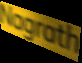
Nagrath